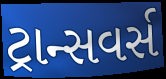
ટ્રાન્સવર્સ